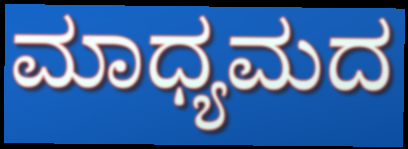
ಮಾಧ್ಯಮದ